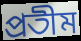
প্ৰতীম